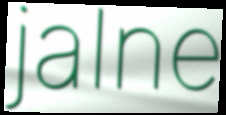
jalne